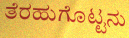
ತೆರಹುಗೊಟ್ಟನು